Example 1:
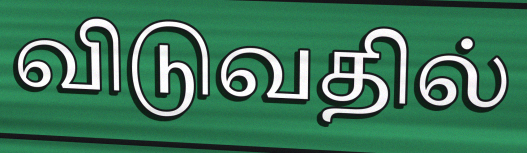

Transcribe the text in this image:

விடுவதில்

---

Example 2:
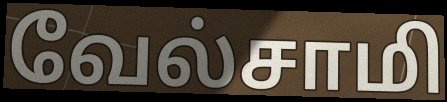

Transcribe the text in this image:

வேல்சாமி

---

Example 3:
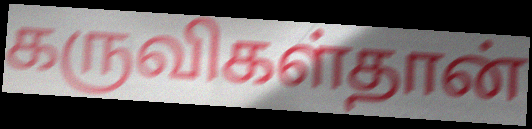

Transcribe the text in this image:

கருவிகள்தான்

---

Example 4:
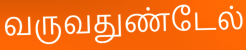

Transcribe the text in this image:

வருவதுண்டேல்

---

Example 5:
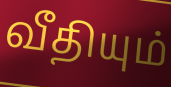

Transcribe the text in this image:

வீதியும்